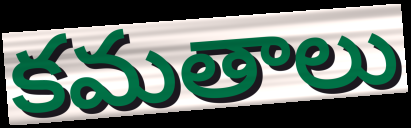
కమతాలు